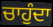
ਚਾਹੁੰਦਾ